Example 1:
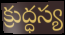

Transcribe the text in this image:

క్రుద్ధస్య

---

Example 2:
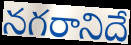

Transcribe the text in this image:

నగరానిదే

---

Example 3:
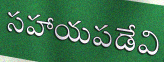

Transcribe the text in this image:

సహాయపడేవి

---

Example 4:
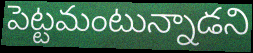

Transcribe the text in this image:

పెట్టమంటున్నాడని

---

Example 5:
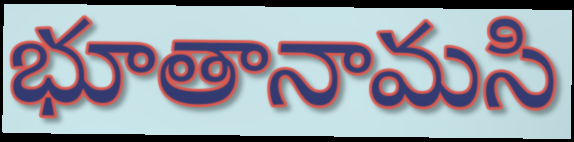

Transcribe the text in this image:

భూతానామసి